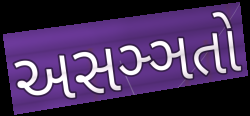
અસઞ્ઞતો